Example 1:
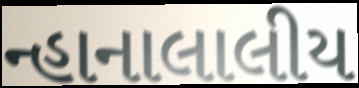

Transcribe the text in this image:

ન્હાનાલાલીય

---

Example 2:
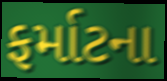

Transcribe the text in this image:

ફર્માટના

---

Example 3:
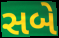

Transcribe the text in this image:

સબે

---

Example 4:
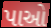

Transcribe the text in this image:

પાઓ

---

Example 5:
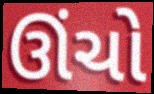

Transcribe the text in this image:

ઊંચો